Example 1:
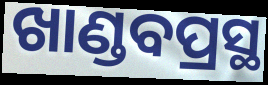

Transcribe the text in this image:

ଖାଣ୍ଡବପ୍ରସ୍ଥ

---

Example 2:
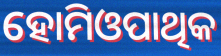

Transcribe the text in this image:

ହୋମିଓପାଥିକ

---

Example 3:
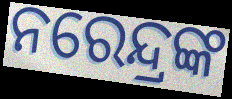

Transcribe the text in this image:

ନରେନ୍ଦ୍ରଙ୍କ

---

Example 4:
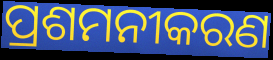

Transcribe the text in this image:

ପ୍ରଶମନୀକରଣ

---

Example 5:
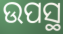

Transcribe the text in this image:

ଉପସ୍ଥ